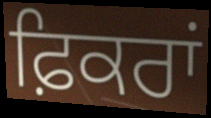
ਫ਼ਿਕਰਾਂ